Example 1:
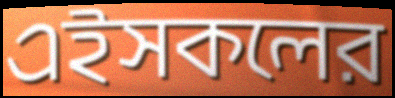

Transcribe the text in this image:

এইসকলের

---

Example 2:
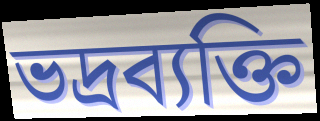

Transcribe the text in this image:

ভদ্রব্যক্তি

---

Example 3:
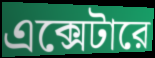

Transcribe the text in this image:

এক্সেটারে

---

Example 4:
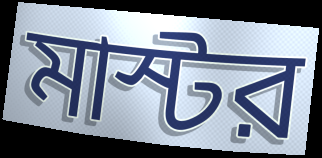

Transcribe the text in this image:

মাস্টর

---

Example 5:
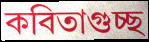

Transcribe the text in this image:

কবিতাগুচ্ছ